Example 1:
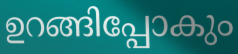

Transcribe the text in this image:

ഉറങ്ങിപ്പോകും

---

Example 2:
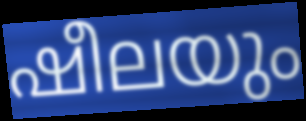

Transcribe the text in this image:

ഷീലയും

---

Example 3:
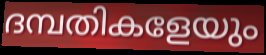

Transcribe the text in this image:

ദമ്പതികളേയും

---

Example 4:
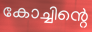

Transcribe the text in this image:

കോച്ചിന്റെ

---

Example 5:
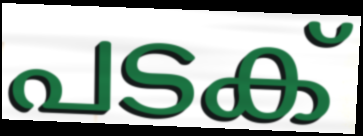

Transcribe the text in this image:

പടക്